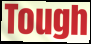
Tough